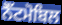
ਨੈੱਟਮੋਬਿਲ